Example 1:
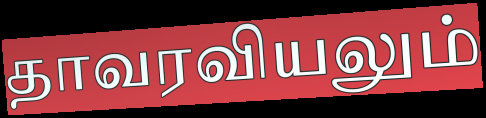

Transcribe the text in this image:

தாவரவியலும்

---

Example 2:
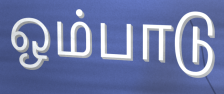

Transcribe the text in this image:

ஒம்பாடு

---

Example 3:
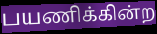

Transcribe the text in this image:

பயணிக்கின்ற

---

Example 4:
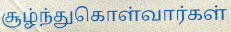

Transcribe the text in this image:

சூழ்ந்துகொள்வார்கள்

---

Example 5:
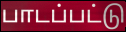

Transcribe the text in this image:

பாடப்பட்டு